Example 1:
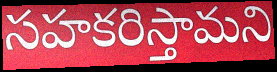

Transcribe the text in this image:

సహకరిస్తామని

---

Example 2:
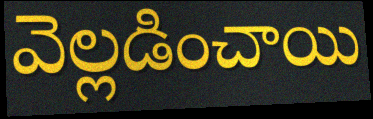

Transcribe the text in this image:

వెల్లడించాయి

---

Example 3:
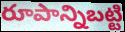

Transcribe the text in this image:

రూపాన్నిబట్టి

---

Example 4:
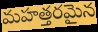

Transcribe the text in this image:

మహత్తరమైన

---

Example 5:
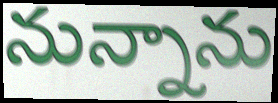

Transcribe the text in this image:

నున్నాను